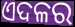
ଏଦଳର